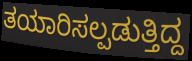
ತಯಾರಿಸಲ್ಪಡುತ್ತಿದ್ದ